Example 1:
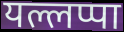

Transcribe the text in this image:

यल्लप्पा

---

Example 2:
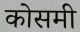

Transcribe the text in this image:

कोसमी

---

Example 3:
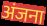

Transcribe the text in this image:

अंजना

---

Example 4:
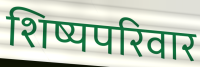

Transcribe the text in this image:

शिष्यपरिवार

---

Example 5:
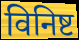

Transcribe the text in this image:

विनिष्ट